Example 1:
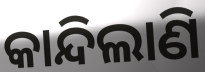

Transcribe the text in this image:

କାନ୍ଦିଲାଣି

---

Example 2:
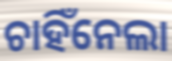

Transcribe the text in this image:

ଚାହିଁନେଲା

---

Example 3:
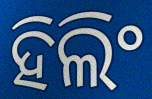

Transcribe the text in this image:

ହିଲିଂ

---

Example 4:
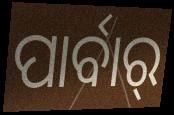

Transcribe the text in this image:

ପାର୍ବାର୍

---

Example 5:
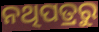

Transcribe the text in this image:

ନଥିପତ୍ରରୁ